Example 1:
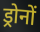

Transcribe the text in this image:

ड्रोनों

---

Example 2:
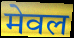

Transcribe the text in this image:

मेवल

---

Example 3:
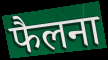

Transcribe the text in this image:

फैलना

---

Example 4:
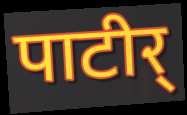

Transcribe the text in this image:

पाटीर्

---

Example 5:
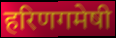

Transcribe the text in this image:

हरिणगमेषी